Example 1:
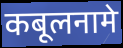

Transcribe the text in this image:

कबूलनामे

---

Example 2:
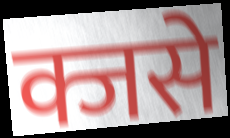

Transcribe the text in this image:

क्जसे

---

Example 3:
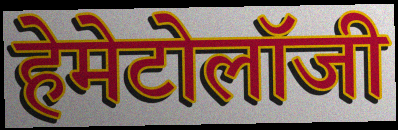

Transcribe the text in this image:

हेमेटोलॉजी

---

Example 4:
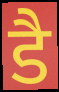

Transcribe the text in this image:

डै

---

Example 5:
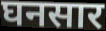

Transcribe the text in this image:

घनसार